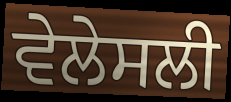
ਵੇਲੇਸਲੀ